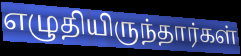
எழுதியிருந்தார்கள்